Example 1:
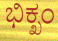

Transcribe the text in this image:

ಭಿಕ್ಖಂ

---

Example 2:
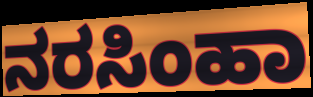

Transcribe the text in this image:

ನರಸಿಂಹಾ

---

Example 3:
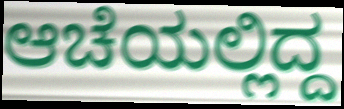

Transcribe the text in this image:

ಆಚೆಯಲ್ಲಿದ್ದ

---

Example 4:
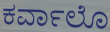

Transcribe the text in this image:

ಕರ್ವಾಲೊ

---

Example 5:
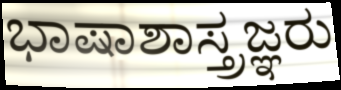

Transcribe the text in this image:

ಭಾಷಾಶಾಸ್ತ್ರಜ್ಞರು